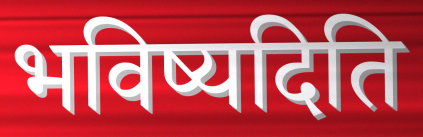
भविष्यदिति